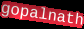
gopalnath